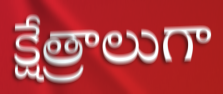
క్షేత్రాలుగా